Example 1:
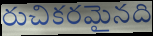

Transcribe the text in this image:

రుచికరమైనది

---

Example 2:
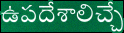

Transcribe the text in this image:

ఉపదేశాలిచ్చే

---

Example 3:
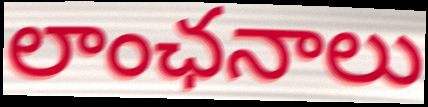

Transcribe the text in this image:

లాంఛనాలు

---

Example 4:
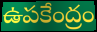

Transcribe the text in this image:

ఉపకేంద్రం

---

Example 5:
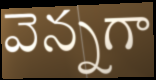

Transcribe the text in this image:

వెన్నగా